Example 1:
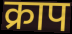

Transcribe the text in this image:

क्राप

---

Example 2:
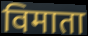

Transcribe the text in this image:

विमाता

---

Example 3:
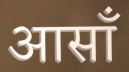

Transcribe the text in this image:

आसाँ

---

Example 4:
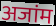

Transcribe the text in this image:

अजांम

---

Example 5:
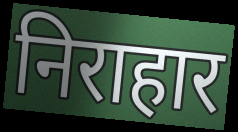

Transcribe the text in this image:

निराहार